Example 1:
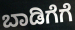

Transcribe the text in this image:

ಬಾಡಿಗೆಗೆ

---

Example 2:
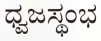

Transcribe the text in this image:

ಧ್ವಜಸ್ಥಂಭ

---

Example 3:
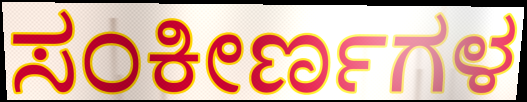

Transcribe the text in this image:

ಸಂಕೀರ್ಣಗಳ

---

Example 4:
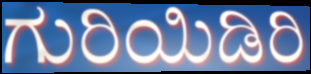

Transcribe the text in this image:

ಗುರಿಯಿಡಿರಿ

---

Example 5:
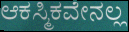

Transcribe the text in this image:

ಆಕಸ್ಮಿಕವೇನಲ್ಲ